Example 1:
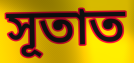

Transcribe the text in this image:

সূতাত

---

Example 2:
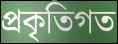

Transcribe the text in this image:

প্ৰকৃতিগত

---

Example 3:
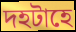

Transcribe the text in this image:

দহটাহে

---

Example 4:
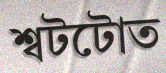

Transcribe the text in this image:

শ্বটটোত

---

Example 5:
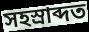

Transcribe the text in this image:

সহস্ৰাব্দত